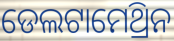
ଡେଲଟାମେଥ୍ରିନ